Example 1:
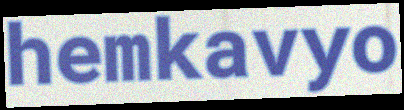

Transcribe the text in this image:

hemkavyo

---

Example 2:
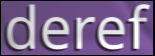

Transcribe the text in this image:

deref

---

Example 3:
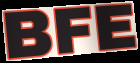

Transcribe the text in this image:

BFE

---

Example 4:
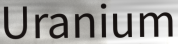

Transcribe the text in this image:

Uranium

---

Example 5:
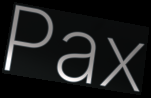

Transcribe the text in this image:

Pax